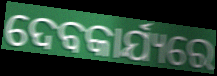
ଦେବକାର୍ଯ୍ୟରେ